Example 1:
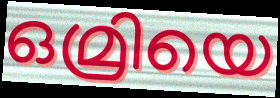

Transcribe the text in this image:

ഒമ്രിയെ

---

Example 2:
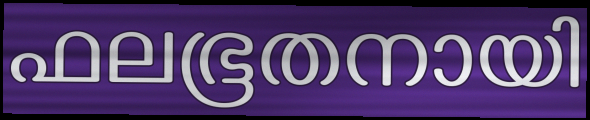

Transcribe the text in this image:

ഫലഭൂതനായി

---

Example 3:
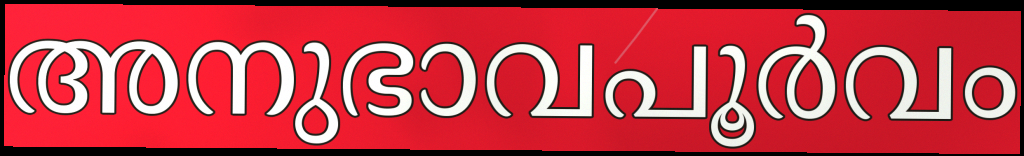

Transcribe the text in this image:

അനുഭാവപൂർവം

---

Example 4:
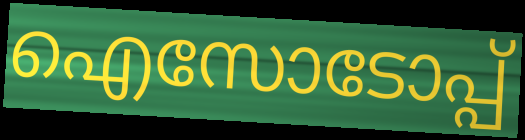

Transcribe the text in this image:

ഐസോടോപ്പ്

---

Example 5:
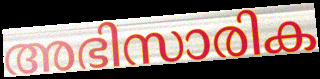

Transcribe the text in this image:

അഭിസാരിക